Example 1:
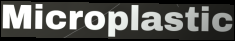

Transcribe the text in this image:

Microplastic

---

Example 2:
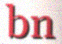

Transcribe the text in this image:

bn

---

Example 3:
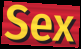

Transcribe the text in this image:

Sex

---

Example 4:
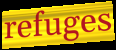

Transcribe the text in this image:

refuges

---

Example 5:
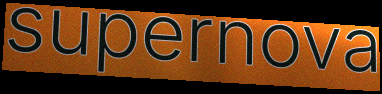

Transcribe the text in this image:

supernova